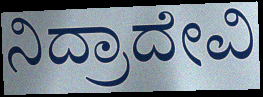
ನಿದ್ರಾದೇವಿ